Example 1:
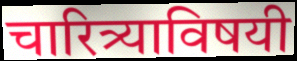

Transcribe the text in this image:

चारित्र्याविषयी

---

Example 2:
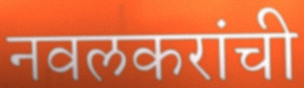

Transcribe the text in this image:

नवलकरांची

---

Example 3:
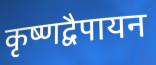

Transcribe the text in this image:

कृष्णद्वैपायन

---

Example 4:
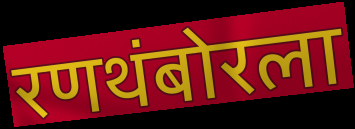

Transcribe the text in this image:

रणथंबोरला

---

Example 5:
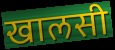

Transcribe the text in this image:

खालसी